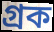
গ্রক